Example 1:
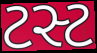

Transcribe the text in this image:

ટસ્ટ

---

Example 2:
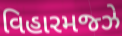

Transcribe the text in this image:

વિહારમજ્ઝે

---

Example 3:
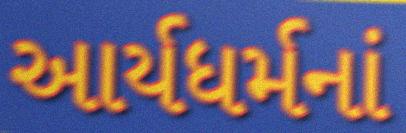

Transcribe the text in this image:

આર્યધર્મનાં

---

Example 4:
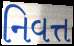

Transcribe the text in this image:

નિવત્ત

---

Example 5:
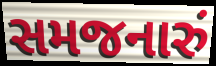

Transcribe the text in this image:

સમજનારું